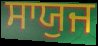
ਸਾਯੁਜ